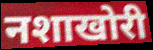
नशाखोरी